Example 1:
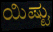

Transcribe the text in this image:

ಯಿಷ್ಟು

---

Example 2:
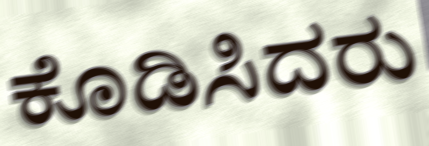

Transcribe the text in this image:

ಕೊಡಿಸಿದರು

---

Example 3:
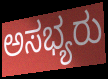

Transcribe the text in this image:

ಅಸಭ್ಯರು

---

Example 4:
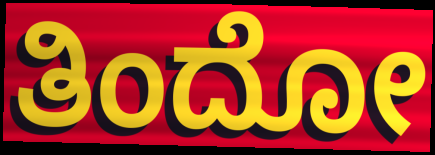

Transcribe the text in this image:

ತಿಂದೋ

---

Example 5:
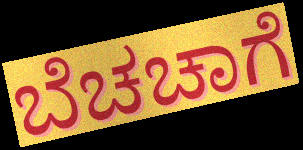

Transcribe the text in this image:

ಬೆಚಚಾಗೆ